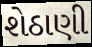
શેઠાણી